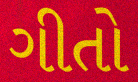
ગીતો